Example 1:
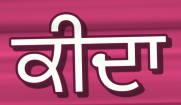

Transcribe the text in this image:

ਕੀਦਾ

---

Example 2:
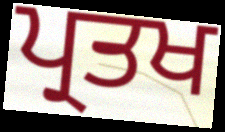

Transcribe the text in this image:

ਪ੍ਰਤਖ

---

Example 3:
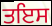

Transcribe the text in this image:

ਤਇਸ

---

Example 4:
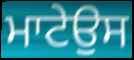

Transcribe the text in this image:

ਮਾਟੇਉਸ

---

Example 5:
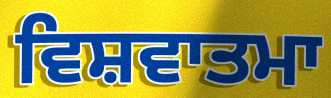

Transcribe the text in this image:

ਵਿਸ਼ਵਾਤਮਾ